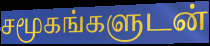
சமூகங்களுடன்